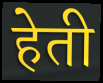
हेती